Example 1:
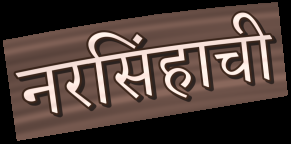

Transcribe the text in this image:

नरसिंहाची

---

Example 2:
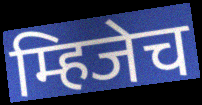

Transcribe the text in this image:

म्हिजेच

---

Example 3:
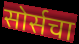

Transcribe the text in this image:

सोर्सचा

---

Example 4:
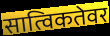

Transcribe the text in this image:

सात्विकतेवर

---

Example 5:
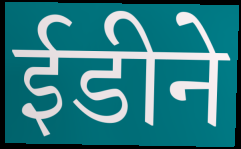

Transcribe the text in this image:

ईडीने